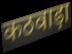
कठवाड़ा